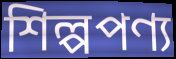
শিল্পপণ্য